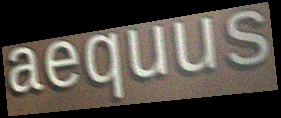
aequus